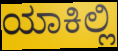
ಯಾಕಿಲ್ಲಿ